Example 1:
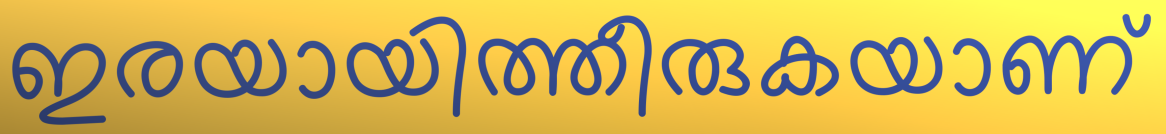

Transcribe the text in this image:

ഇരയായിത്തീരുകയാണ്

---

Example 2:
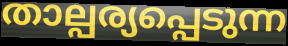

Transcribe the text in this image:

താല്പര്യപ്പെടുന്ന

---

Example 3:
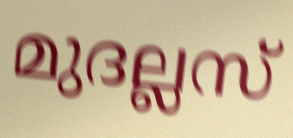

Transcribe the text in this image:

മുദല്ലസ്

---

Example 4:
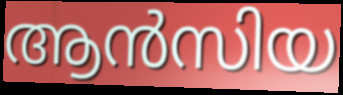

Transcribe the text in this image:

ആൻസിയ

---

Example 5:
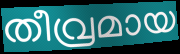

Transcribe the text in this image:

തീവ്രമായ